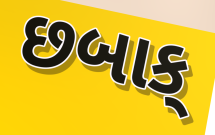
છબાક્